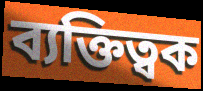
ব্যক্তিত্বক